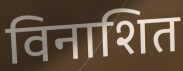
विनाशित